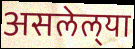
असलेल्या